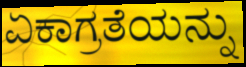
ಏಕಾಗ್ರತೆಯನ್ನು